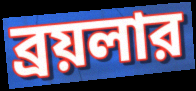
ব্রয়লার